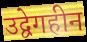
उद्वेगहीन